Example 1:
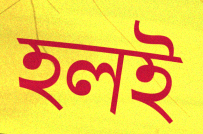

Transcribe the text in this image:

হলই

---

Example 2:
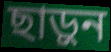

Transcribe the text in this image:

ছাড়ুন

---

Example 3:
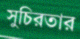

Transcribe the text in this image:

সুচিরতার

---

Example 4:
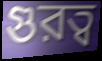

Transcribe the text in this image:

গুরত্ব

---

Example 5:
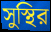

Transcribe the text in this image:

সুস্থির